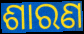
ଶାରଣ